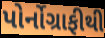
પોર્નોગ્રાફીથી